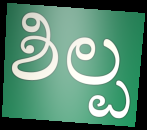
ಶಿಲ್ಪ